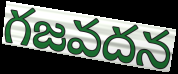
గజవదన